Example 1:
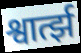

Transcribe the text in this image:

श्वार्त्झ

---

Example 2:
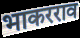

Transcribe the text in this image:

भाकरराव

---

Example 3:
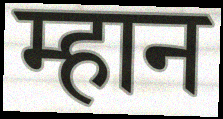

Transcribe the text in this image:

म्हान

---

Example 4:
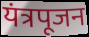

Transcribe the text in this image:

यंत्रपूजन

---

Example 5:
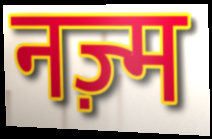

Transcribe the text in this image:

नज़्म